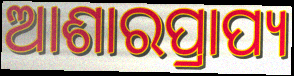
ଆଶାରପ୍ରାପ୍ୟ